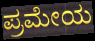
ಪ್ರಮೇಯ